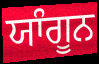
ਯਾੰਗੂਨ